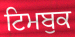
ਟਿਮਬੁਕ